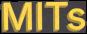
MITs